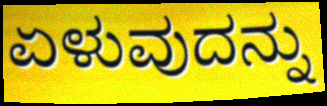
ಏಳುವುದನ್ನು